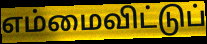
எம்மைவிட்டுப்